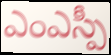
ఎంఎస్పీ